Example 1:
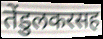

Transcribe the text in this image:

तेंडुलकरसह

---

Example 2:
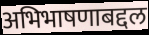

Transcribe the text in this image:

अभिभाषणाबद्दल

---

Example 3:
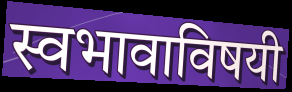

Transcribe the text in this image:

स्वभावाविषयी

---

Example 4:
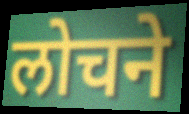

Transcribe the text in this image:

लोचने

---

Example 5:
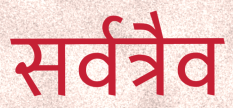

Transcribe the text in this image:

सर्वत्रैव